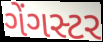
ગેંગસ્ટર